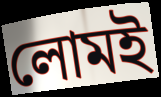
লোমই